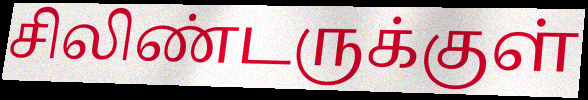
சிலிண்டருக்குள்